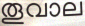
തൂവാല